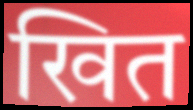
खित